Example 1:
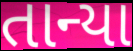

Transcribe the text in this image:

તાન્યા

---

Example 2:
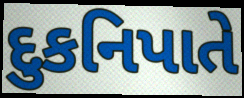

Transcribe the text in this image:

દુકનિપાતે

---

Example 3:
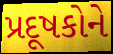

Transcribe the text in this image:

પ્રદૂષકોને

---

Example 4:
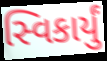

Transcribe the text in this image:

સ્વિકાર્યું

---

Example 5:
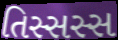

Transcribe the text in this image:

તિસ્સસ્સ